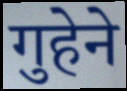
गुहेने